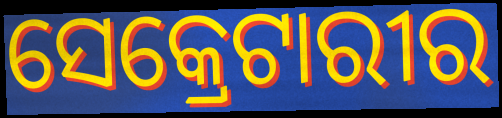
ସେକ୍ରେଟାରୀର